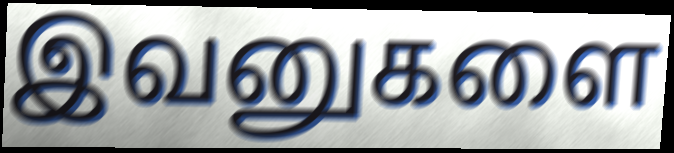
இவனுகளை